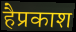
हैप्रकाश